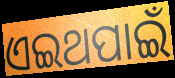
ଏଇଥପାଇଁ